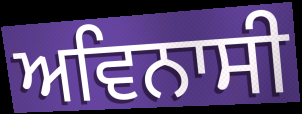
ਅਵਿਨਾਸੀ